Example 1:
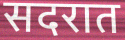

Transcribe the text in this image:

सदरात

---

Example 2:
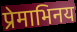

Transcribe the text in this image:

प्रेमाभिनय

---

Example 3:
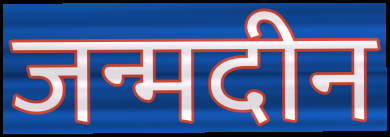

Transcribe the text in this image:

जन्मदीन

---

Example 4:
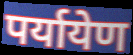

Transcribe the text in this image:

पर्यायेण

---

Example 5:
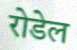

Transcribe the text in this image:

रोडेल